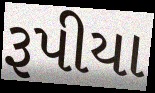
રૂપીયા